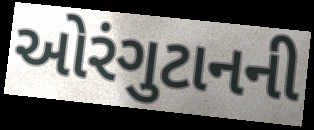
ઓરંગુટાનની